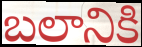
బలానికి